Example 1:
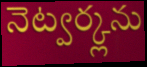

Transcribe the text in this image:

నెట్వర్క్లను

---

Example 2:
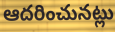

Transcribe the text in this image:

ఆదరించునట్లు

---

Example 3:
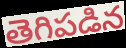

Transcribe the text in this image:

తెగిపడిన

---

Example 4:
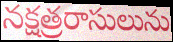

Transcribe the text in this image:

నక్షత్రరాసులును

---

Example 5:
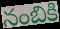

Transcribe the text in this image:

నంబికి